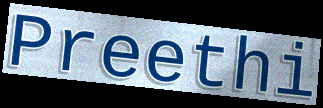
Preethi